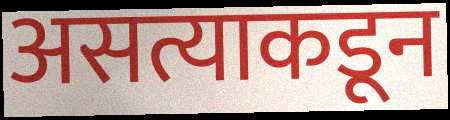
असत्याकडून